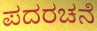
ಪದರಚನೆ